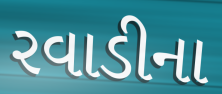
રવાડીના